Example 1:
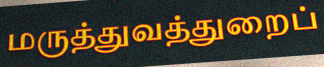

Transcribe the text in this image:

மருத்துவத்துறைப்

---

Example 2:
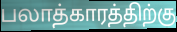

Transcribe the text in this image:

பலாத்காரத்திற்கு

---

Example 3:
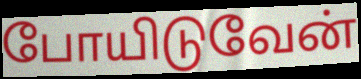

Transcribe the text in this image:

போயிடுவேன்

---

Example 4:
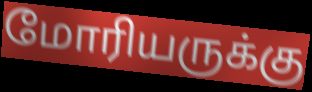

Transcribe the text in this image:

மோரியருக்கு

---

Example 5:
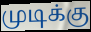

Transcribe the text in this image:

முடிக்கு